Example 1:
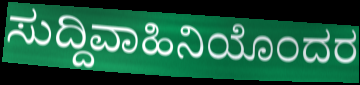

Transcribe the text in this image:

ಸುದ್ದಿವಾಹಿನಿಯೊಂದರ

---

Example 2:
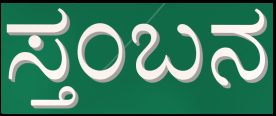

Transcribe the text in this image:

ಸ್ತಂಬನ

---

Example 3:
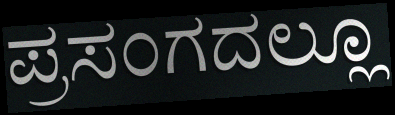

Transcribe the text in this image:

ಪ್ರಸಂಗದಲ್ಲೂ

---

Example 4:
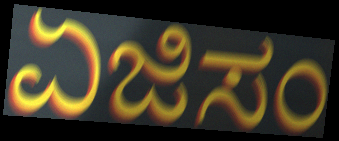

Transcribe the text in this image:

ಏಜಿಸಂ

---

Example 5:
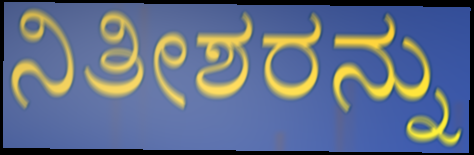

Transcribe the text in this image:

ನಿತೀಶರನ್ನು